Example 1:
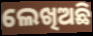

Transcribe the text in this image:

ଲେଖିଅଛି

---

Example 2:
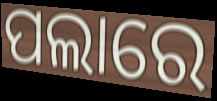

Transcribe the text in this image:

ପଲାରେ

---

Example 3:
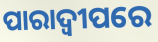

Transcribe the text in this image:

ପାରାଦ୍ୱୀପରେ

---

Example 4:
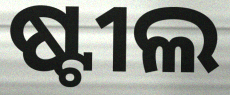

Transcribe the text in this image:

ଷ୍ଟୀଲ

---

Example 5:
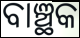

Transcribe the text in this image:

ବାଞ୍ଛକ